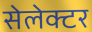
सेलेक्टर